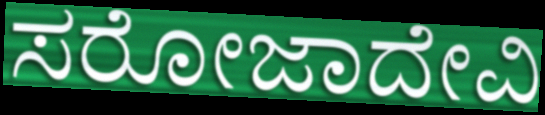
ಸರೋಜಾದೇವಿ